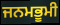
ਜਨਮਭੂਮੀ